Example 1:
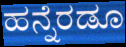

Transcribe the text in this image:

ಹನ್ನೆರಡೂ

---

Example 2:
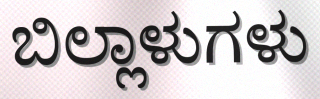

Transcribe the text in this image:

ಬಿಲ್ಲಾಳುಗಳು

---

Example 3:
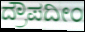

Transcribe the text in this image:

ದ್ರೌಪದೀಂ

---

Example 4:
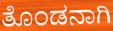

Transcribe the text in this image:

ತೊಂಡನಾಗಿ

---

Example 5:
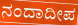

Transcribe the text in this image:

ನಂದಾದೀಪ